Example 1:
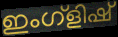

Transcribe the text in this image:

ഇംഗ്ളിഷ്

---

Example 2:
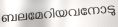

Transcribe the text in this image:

ബലമേറിയവനോടു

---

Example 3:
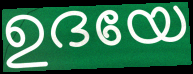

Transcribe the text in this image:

ഉദയേ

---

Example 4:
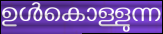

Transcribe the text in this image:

ഉൾകൊള്ളുന്ന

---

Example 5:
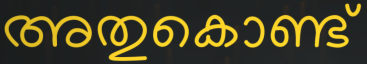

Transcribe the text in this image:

അതുകൊണ്ട്